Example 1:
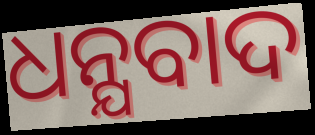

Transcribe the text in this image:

ଧନ୍ଯବାଦ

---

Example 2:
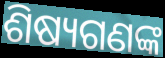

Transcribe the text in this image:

ଶିଷ୍ୟଗଣଙ୍କ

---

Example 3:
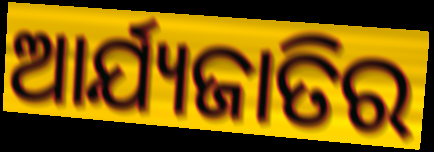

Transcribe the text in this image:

ଆର୍ଯ୍ୟଜାତିର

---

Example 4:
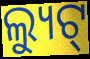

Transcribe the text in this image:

ଲ୍ୟୁଟ୍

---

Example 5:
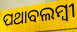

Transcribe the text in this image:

ପଥାବଲମ୍ବୀ